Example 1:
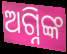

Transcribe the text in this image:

ଅଗ୍ନିଙ୍କ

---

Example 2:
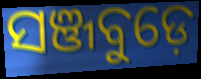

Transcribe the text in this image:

ସଞ୍ଜବୁଡ଼େ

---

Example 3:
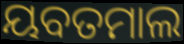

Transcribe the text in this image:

ୟବତମାଲ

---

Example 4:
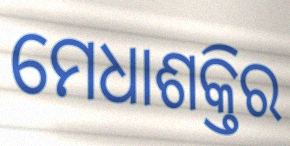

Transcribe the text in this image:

ମେଧାଶକ୍ତିର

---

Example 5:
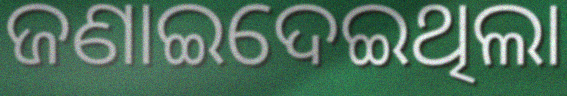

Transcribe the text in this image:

ଜଣାଇଦେଇଥିଲା